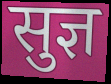
सुज्ञ